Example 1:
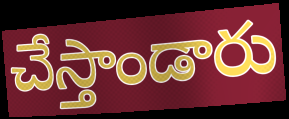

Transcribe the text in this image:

చేస్తాండారు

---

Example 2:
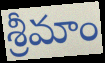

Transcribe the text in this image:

శ్రీమాం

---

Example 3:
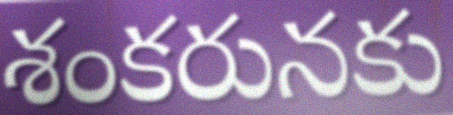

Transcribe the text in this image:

శంకరునకు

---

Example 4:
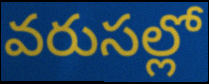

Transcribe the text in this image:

వరుసల్లో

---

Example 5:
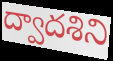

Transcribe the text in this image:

ద్వాదశిని